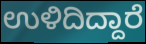
ಉಳಿದಿದ್ದಾರೆ